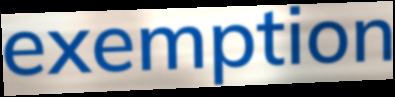
exemption